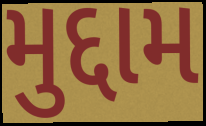
મુદ્દામ